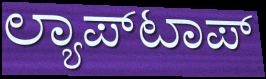
ಲ್ಯಾಪ್‌ಟಾಪ್